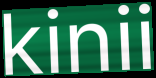
kinii